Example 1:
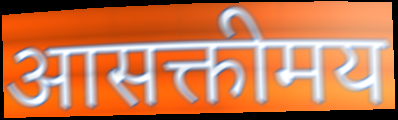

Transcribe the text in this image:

आसक्तीमय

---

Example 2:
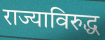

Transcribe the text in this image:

राज्याविरुद्ध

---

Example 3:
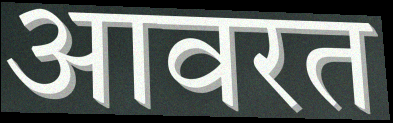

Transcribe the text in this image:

आवरत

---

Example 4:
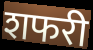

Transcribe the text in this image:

शफरी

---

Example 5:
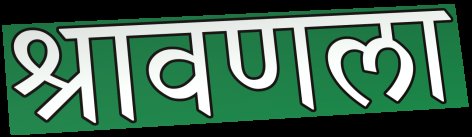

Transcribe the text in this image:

श्रावणला